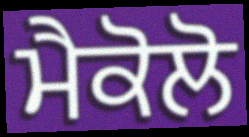
ਮੈਕੋਲੋ